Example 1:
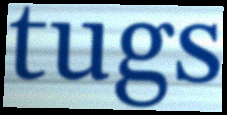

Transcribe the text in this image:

tugs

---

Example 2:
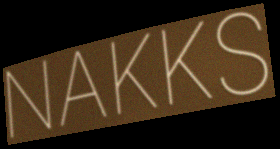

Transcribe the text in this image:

NAKKS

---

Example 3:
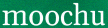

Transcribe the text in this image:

moochu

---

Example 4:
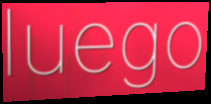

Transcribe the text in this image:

luego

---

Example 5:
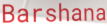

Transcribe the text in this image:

Barshana